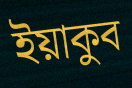
ইয়াকুব